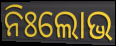
ନିଃଲୋଭ